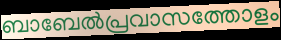
ബാബേൽപ്രവാസത്തോളം